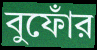
বুফোঁর